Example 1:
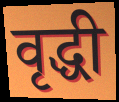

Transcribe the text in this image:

वृद्धी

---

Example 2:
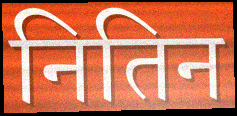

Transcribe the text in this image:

नितिन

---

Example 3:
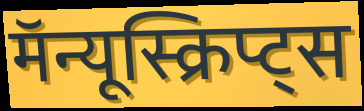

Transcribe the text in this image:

मॅन्यूस्क्रिप्ट्स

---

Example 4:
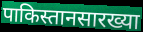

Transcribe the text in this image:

पाकिस्तानसारख्या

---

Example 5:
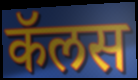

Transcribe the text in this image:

कॅलस